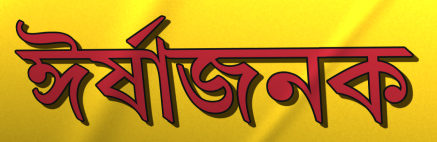
ঈর্ষাজনক